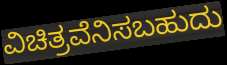
ವಿಚಿತ್ರವೆನಿಸಬಹುದು